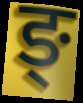
ङ्